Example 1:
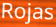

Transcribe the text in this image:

Rojas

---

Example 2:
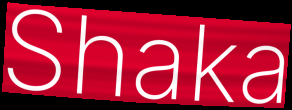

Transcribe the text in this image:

Shaka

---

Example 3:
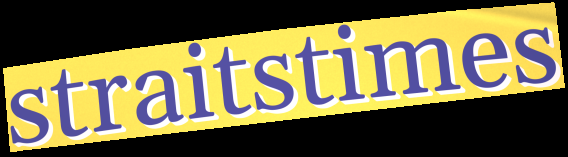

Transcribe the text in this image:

straitstimes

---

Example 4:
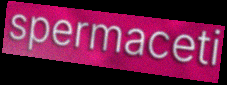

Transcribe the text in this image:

spermaceti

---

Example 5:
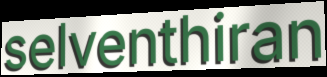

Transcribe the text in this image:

selventhiran